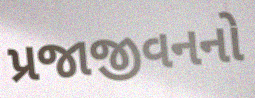
પ્રજાજીવનનો